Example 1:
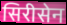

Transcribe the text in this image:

सिरीसेन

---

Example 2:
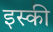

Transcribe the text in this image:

इस्की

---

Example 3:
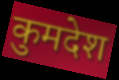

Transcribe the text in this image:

कुमदेश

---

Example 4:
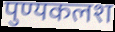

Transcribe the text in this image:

पुण्यकलश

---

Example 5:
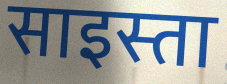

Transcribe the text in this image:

साइस्ता